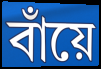
বাঁয়ে